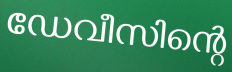
ഡേവീസിന്റെ